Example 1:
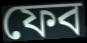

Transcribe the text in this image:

ফেব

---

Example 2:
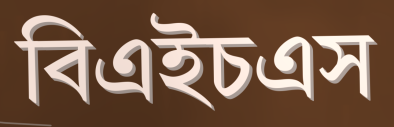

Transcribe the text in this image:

বিএইচএস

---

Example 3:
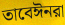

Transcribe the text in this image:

তাবেঈনরা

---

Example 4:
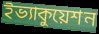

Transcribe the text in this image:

ইভ্যাকুয়েশন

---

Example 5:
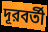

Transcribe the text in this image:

দূরবর্তী